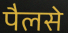
पैलसे